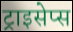
ट्राइसेप्स